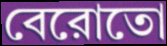
বেরোতো